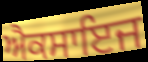
ਐਕਸਾਇਜ